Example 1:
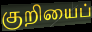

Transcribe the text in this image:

குறியைப்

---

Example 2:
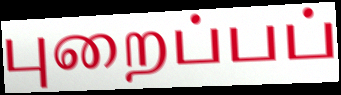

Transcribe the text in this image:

புறைப்பப்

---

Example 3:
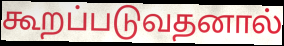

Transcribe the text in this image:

கூறப்படுவதனால்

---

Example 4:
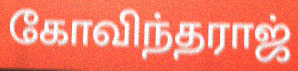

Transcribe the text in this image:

கோவிந்தராஜ்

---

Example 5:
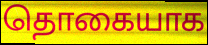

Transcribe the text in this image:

தொகையாக